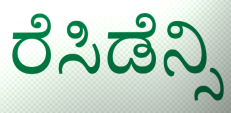
ರೆಸಿಡೆನ್ಸಿ